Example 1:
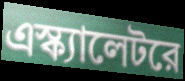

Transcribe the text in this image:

এস্ক্যালেটরে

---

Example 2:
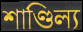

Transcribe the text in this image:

শাণ্ডিল্য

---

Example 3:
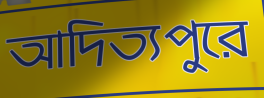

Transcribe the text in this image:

আদিত্যপুরে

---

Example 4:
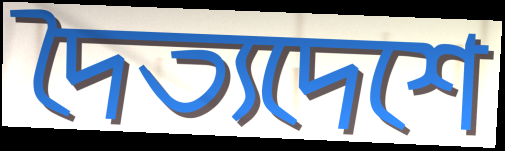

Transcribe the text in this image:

দৈত্যদেশে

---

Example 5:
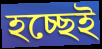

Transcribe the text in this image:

হচ্ছেই